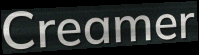
Creamer